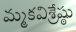
మ్మకవిశ్రేష్ఠు